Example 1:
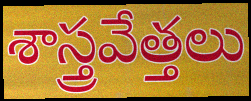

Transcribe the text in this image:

శాస్త్రవేత్తలు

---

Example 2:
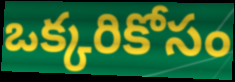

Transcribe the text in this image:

ఒక్కరికోసం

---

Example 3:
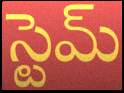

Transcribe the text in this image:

స్టెమ్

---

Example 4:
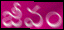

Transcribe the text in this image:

జీవం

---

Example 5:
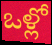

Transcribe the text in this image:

ఒళ్లో